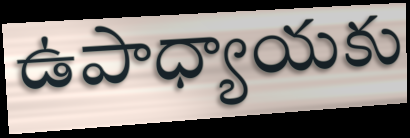
ఉపాధ్యాయకు